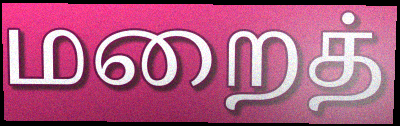
மறைத்